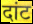
दांट